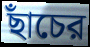
ছাঁচের